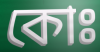
কোঃ